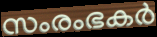
സംരംഭകർ